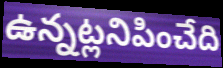
ఉన్నట్లనిపించేది